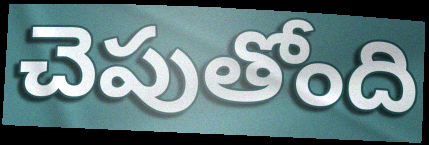
చెపుతోంది